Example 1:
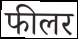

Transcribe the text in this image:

फीलर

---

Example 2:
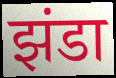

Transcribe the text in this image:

झंडा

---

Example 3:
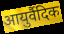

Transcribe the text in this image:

आयुर्वैदिक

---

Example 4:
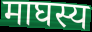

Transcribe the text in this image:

माघस्य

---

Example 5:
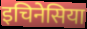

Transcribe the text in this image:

इचिनेसिया